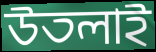
উতলাই